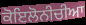
ਕੋਇਲੋਨੀਚੀਆ